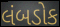
લંબડોક